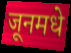
जूनमधे